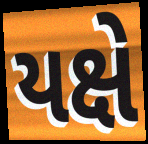
યક્ષે